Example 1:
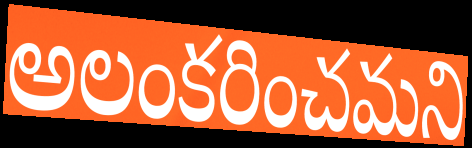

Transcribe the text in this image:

అలంకరించమని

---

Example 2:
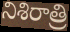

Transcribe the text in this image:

నిశిరాత్రి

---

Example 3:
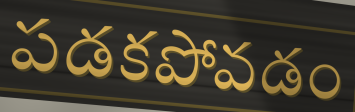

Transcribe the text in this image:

పడకపోవడం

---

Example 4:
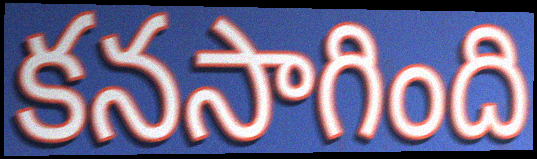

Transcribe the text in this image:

కనసాగింది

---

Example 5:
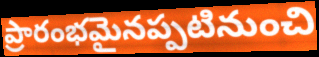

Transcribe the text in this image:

ప్రారంభమైనప్పటినుంచి